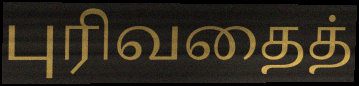
புரிவதைத்